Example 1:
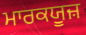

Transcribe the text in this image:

ਮਾਰਕਯੂਜ਼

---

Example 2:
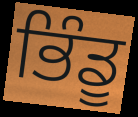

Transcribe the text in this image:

ਭਿੰਡੂ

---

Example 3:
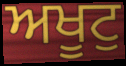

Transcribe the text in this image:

ਅਖੂਟੁ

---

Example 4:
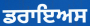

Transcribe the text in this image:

ਡਰਾਇਅਸ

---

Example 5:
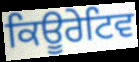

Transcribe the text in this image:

ਕਿਊਰੇਟਿਵ